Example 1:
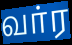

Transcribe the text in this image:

வர்ர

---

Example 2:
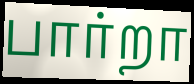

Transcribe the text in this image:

பார்றா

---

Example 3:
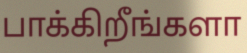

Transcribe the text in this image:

பாக்கிறீங்களா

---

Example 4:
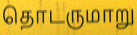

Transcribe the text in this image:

தொடருமாறு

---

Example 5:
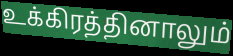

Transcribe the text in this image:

உக்கிரத்தினாலும்